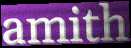
amith